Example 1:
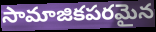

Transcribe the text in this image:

సామాజికపరమైన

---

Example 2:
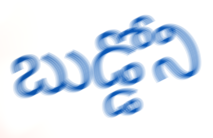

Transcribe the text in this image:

బుడ్డోని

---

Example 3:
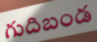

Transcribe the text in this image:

గుదిబండ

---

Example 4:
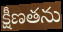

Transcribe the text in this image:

క్షీణతను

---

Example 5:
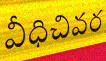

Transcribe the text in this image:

వీధిచివర